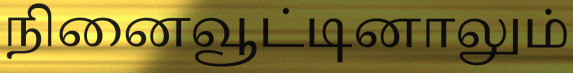
நினைவூட்டினாலும்